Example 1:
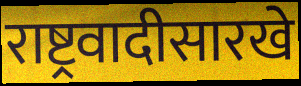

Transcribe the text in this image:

राष्ट्रवादीसारखे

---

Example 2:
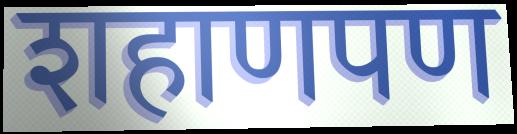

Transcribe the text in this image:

शहाणपण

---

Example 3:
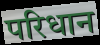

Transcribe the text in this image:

परिधान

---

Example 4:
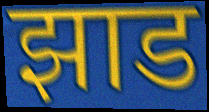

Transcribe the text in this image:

झाड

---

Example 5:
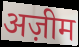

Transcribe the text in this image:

अज़ीम